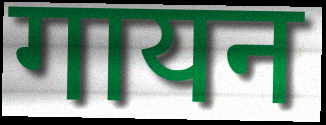
गायन